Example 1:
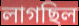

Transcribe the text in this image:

লাগছিল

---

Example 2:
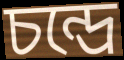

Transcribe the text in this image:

চন্দ্রে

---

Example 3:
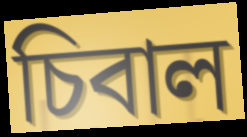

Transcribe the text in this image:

চিবাল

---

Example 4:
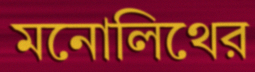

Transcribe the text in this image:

মনোলিথের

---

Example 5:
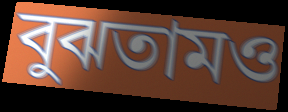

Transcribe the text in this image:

বুঝতামও